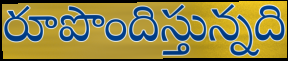
రూపొందిస్తున్నది